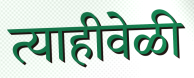
त्याहीवेळी